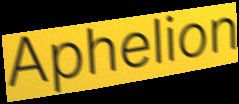
Aphelion